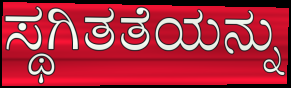
ಸ್ಥಗಿತತೆಯನ್ನು